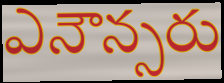
ఎనౌన్సరు